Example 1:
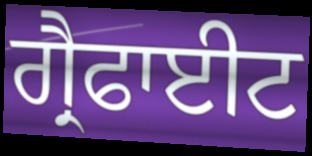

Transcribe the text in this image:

ਗ੍ਰੈਫਾਈਟ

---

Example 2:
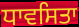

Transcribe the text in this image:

ਧਾਵਸਿਤਾ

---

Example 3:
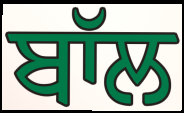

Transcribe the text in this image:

ਬਾੱਲ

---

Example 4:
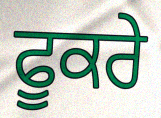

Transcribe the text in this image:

ਫੂਕਰੇ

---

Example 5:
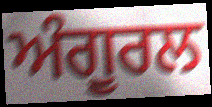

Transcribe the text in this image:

ਅੰਗੂਰਲ